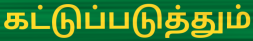
கட்டுப்படுத்தும்